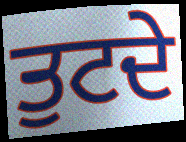
ਤੁਟਦੇ